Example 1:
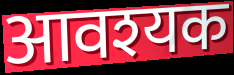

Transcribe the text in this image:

आवश्‍यक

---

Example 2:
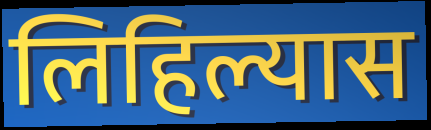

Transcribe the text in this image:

लिहिल्यास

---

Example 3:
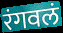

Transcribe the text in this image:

रंगवलं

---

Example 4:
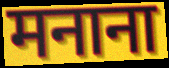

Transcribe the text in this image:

मनाना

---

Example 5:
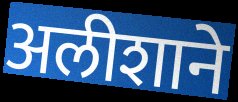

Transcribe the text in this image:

अलीशाने